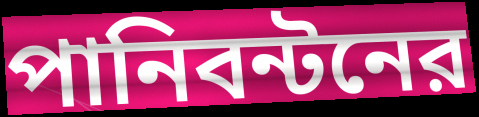
পানিবন্টনের